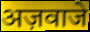
अज़वाजे